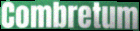
Combretum